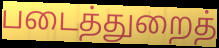
படைத்துறைத்